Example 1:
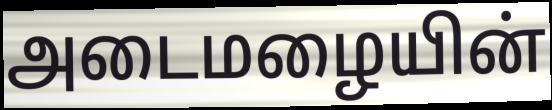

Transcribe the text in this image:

அடைமழையின்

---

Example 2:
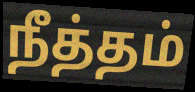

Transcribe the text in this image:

நீத்தம்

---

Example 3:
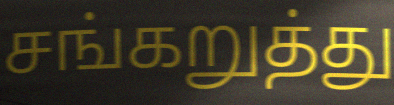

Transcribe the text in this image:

சங்கறுத்து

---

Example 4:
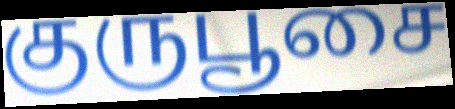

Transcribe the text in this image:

குருபூசை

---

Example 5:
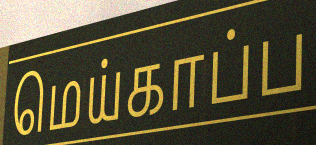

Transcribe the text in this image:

மெய்காப்ப